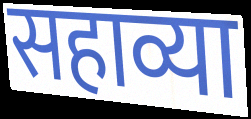
सहाव्या